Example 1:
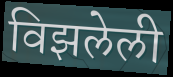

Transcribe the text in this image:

विझलेली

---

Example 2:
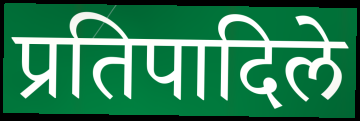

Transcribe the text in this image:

प्रतिपादिले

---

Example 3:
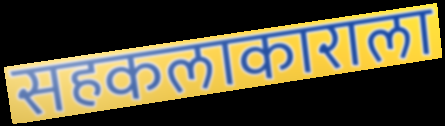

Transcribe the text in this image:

सहकलाकाराला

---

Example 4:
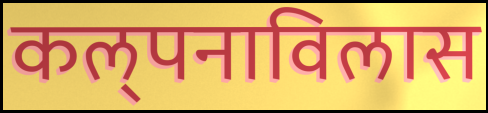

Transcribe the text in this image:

कल्पनाविलास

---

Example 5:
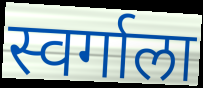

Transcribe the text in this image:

स्वर्गाला